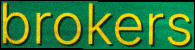
brokers